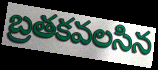
బ్రతకవలసిన